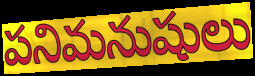
పనిమనుషులు